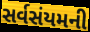
સર્વસંયમની